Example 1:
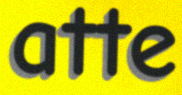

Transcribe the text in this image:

atte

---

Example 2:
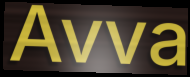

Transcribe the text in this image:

Avva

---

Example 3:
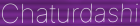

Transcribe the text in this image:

Chaturdashi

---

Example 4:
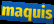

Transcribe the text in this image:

maquis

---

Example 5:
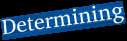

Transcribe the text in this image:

Determining